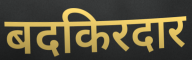
बदकिरदार